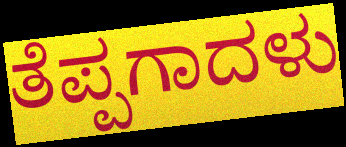
ತೆಪ್ಪಗಾದಳು